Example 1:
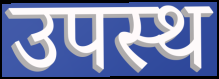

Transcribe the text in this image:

उपस्थ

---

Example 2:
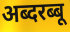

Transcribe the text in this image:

अब्दरब्बू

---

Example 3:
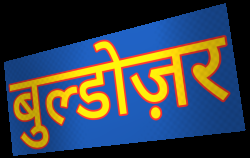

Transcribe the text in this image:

बुल्डोज़र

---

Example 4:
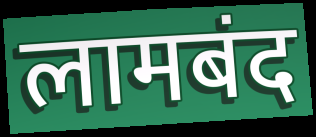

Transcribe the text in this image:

लामबंद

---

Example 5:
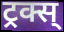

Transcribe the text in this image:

ट्रक्स्